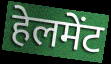
हेलमेंट